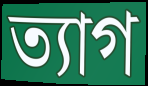
ত্যাগ